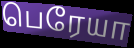
பெரேயா